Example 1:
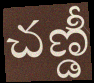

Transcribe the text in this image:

చణ్డీ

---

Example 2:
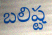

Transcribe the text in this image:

బలిష్ట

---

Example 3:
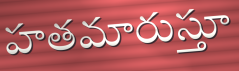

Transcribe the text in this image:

హతమారుస్తూ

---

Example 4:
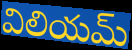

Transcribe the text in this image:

విలియమ్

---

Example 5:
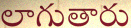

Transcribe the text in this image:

లాగుతారు